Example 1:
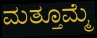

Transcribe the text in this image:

ಮತ್ತೂಮ್ಮೆ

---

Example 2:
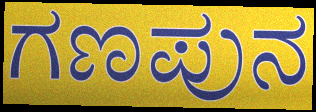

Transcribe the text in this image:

ಗಣಪುನ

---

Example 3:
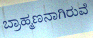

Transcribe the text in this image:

ಬ್ರಾಹ್ಮಣನಾಗಿರುವೆ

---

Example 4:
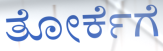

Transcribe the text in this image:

ತೋರ್ಕೆಗೆ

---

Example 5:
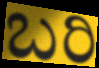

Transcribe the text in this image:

ಬರಿ